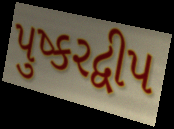
પુષ્કરદ્વીપ